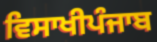
ਵਿਸਾਖੀਪੰਜਾਬ